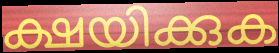
ക്ഷയിക്കുക